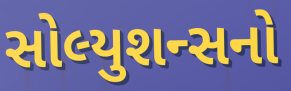
સોલ્યુશન્સનો